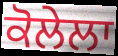
ਕੋਲੇਲਾ